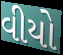
વીયો